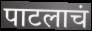
पाटलाचं